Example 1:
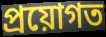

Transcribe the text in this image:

প্ৰয়োগত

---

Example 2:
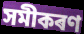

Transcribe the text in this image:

সমীকৰণ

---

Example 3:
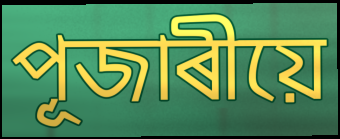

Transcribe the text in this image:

পূজাৰীয়ে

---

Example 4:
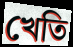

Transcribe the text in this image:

খেতি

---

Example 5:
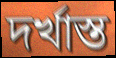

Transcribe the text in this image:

দৰ্খাস্ত